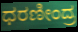
ಧರಣೀಂದ್ರ